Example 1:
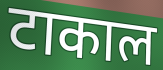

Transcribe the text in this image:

टाकाल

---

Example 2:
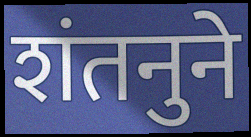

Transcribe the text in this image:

शंतनुने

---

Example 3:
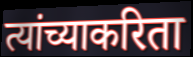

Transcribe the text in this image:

त्यांच्याकरिता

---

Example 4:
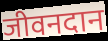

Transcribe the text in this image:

जीवनदान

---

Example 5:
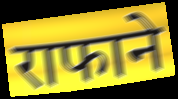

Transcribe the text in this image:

राफाने